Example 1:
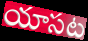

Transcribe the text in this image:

యాసట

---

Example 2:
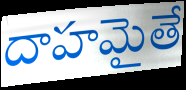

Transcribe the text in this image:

దాహమైతే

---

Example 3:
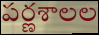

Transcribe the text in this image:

పర్ణశాలల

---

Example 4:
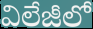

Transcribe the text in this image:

విలేజీలో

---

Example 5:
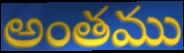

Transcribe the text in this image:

అంతము